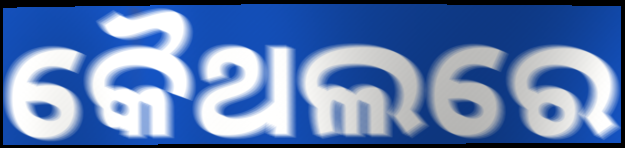
କୈଥଲରେ